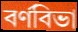
বর্ণবিভা